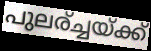
പുലര്ച്ചയ്ക്ക്